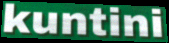
kuntini